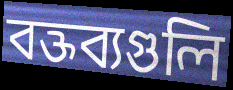
বক্তব্যগুলি